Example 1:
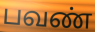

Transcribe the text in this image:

பவண்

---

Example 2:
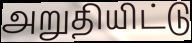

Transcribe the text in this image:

அறுதியிட்டு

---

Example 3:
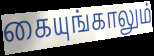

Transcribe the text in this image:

கையுங்காலும்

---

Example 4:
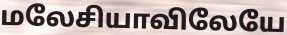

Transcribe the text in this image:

மலேசியாவிலேயே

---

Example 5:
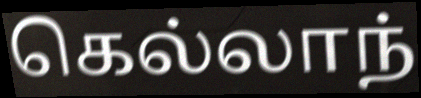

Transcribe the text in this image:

கெல்லாந்